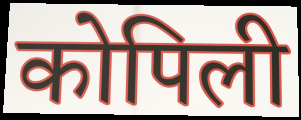
कोपिली